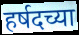
हर्षदच्या